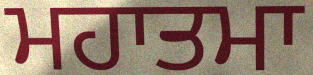
ਮਹਾਤਮਾ